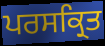
ਪਰਸਕ੍ਰਿਤ